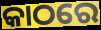
କାଠରେ